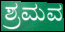
ಶ್ರಮವ